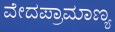
ವೇದಪ್ರಾಮಾಣ್ಯ